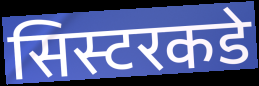
सिस्टरकडे